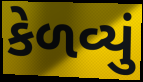
કેળવ્યું